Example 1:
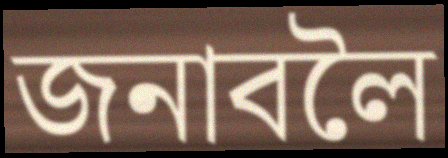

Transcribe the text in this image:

জনাবলৈ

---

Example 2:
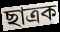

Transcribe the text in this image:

ছাত্ৰক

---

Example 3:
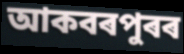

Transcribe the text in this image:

আকবৰপুৰৰ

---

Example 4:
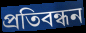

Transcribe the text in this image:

প্ৰতিবন্ধন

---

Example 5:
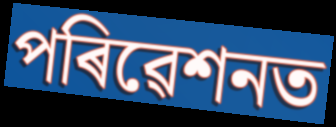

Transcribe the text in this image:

পৰিৱেশনত